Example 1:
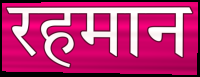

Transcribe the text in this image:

रहमान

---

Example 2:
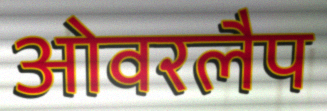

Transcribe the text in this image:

ओवरलैप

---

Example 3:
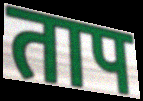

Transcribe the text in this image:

ताप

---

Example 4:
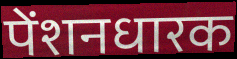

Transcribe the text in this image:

पेंशनधारक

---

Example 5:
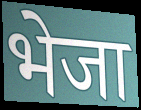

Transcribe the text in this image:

भेजा